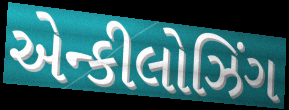
એન્કીલોઝિંગ